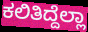
ಕಲಿತಿದ್ದೆಲ್ಲಾ